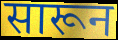
सारून